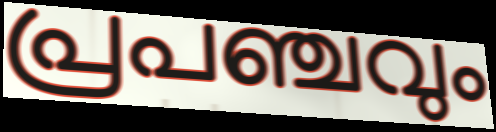
പ്രപഞ്ചവും